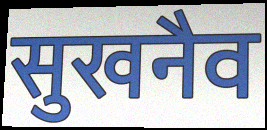
सुखनैव